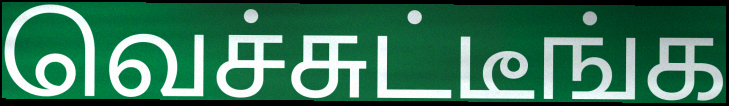
வெச்சுட்டீங்க